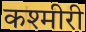
कश्मीरी